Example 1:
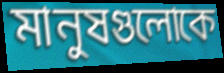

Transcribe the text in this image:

মানুষগুলোকে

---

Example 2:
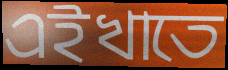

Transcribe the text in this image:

এইখাতে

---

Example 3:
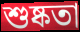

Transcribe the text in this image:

শুষ্কতা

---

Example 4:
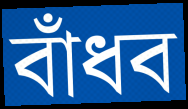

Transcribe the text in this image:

বাঁধব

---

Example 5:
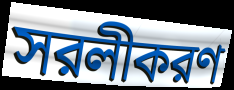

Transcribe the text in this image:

সরলীকরণ